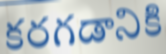
కరగడానికి